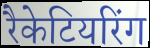
रैकेटियरिंग